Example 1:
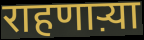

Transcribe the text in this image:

राहणाऱ्‍या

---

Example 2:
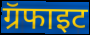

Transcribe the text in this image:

ग्रॅफाइट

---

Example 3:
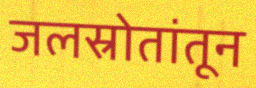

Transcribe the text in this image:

जलस्रोतांतून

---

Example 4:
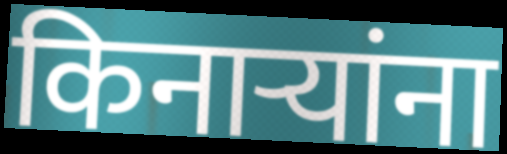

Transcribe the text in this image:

किनाऱ्यांना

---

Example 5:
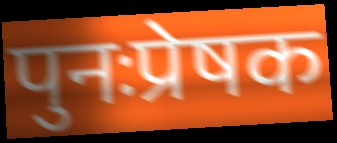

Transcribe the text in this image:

पुनःप्रेषक